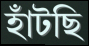
হাঁটছি